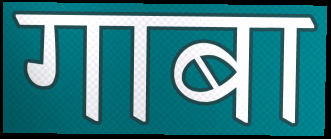
गाबा